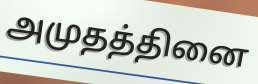
அமுதத்தினை